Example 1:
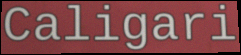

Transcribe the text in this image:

Caligari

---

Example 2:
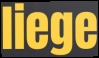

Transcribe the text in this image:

liege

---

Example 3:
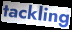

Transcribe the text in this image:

tackling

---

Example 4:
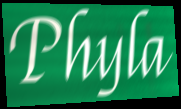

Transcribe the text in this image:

Phyla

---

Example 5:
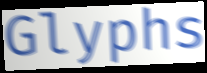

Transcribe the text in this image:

Glyphs